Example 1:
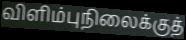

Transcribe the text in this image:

விளிம்புநிலைக்குத்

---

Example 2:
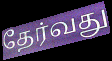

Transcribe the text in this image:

தேர்வது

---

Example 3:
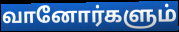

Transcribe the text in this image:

வானோர்களும்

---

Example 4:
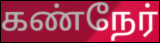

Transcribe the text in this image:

கண்நேர்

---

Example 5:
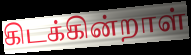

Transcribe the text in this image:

கிடக்கின்றாள்